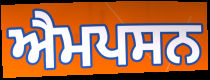
ਐਮਪਸਨ